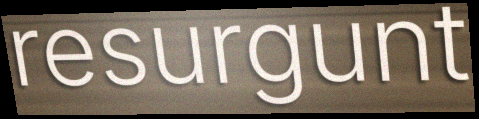
resurgunt